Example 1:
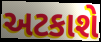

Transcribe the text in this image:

અટકાશે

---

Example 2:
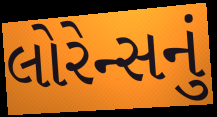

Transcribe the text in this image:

લોરેન્સનું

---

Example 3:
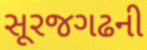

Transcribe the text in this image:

સૂરજગઢની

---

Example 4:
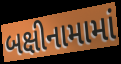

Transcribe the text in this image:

બક્ષીનામામાં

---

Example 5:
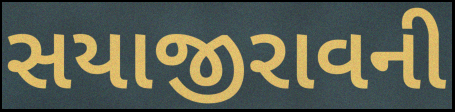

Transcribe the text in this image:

સયાજીરાવની